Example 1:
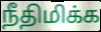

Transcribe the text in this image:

நீதிமிக்க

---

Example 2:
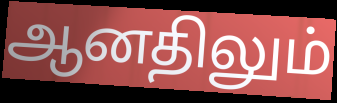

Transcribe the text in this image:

ஆனதிலும்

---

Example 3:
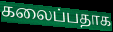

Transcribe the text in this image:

கலைப்பதாக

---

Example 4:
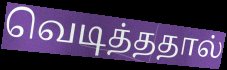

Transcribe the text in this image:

வெடித்ததால்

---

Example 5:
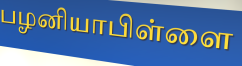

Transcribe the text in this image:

பழனியாபிள்ளை